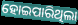
ହୋଇପାରିଥିଲା